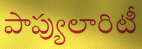
పాప్యులారిటీ